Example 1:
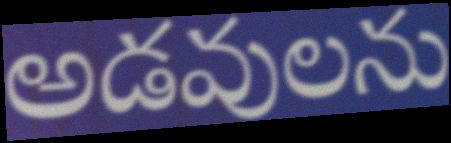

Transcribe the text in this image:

అడవులను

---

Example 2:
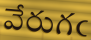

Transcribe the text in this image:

వేరుగఁ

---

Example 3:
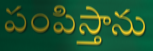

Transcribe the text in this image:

పంపిస్తాను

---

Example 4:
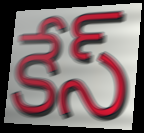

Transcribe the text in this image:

కేస్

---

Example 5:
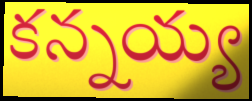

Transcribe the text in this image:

కన్నయ్య